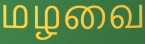
மழவை